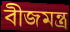
বীজমন্ত্ৰ